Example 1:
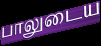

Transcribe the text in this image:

பாலுடைய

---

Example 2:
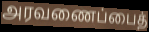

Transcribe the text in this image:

அரவணைப்பைத்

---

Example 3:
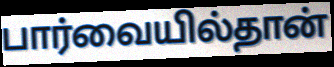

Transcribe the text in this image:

பார்வையில்தான்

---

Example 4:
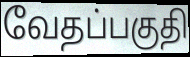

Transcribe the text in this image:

வேதப்பகுதி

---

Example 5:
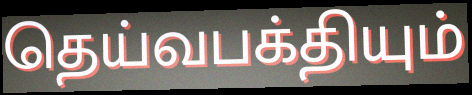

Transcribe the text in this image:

தெய்வபக்தியும்